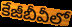
కేజీబీవీలో